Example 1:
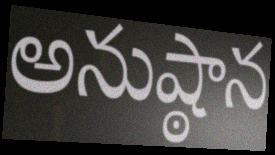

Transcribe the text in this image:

అనుష్ఠాన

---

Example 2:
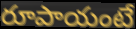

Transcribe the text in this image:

రూపాయంటే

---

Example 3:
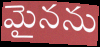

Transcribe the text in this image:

మైనను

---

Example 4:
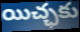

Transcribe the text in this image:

యిచ్ఛకు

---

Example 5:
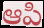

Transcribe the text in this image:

ఆపి